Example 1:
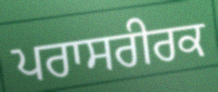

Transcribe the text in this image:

ਪਰਾਸਰੀਰਕ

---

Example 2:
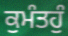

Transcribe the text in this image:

ਕੁਮੰਤਹੁੰ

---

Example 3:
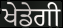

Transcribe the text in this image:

ਖੇਡੇਗੀ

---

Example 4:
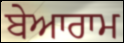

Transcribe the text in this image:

ਬੇਆਰਾਮ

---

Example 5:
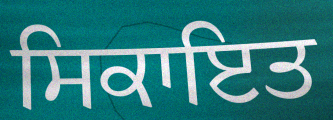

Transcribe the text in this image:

ਸਿਕਾਇਤ